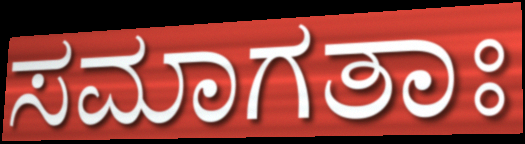
ಸಮಾಗತಾಃ